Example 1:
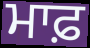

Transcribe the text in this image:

ਮਾਫ਼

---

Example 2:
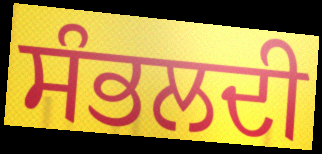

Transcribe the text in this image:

ਸੰਭਲਦੀ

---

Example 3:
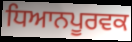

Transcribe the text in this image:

ਧਿਆਨਪੂਰਵਕ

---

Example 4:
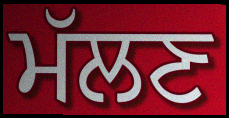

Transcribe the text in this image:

ਮੱਲਣ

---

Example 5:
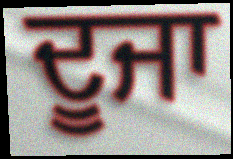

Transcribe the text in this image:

ਦੂਜਾ